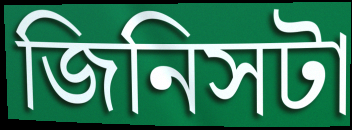
জিনিসটা